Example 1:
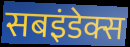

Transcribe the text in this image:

सबइंडेक्स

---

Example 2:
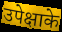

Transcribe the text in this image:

उपेक्षाके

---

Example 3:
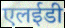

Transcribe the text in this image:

एलईडी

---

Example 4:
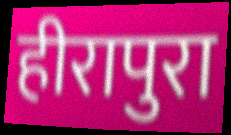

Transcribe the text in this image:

हीरापुरा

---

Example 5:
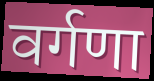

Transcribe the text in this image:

वर्गणा